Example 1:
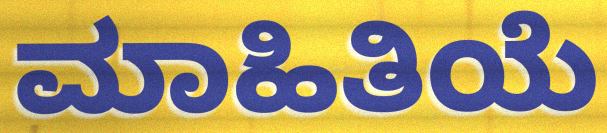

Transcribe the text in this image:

ಮಾಹಿತಿಯೆ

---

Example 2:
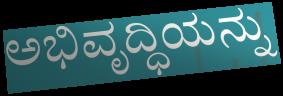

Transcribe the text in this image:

ಅಭಿವೃದ್ಧಿಯನ್ನು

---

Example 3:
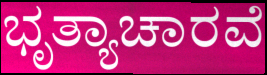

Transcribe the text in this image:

ಭೃತ್ಯಾಚಾರವೆ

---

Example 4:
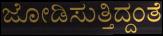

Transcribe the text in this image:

ಜೋಡಿಸುತ್ತಿದ್ದಂತೆ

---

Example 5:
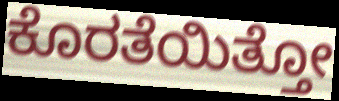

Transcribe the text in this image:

ಕೊರತೆಯಿತ್ತೋ